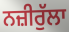
ਨਜ਼ੀਰੁੱਲਾ